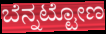
ಬೆನ್ನಟ್ಟೋಣ